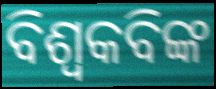
ବିଶ୍ୱକବିଙ୍କ